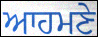
ਆਹਮਣੇ